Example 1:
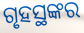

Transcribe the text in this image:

ଗୃହସ୍ଥଙ୍କର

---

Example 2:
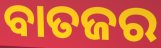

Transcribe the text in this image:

ବାତଜର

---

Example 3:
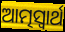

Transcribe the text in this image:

ଆତ୍ମସ୍ଵାର୍ଥ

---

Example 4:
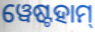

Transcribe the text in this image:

ୱେଷ୍ଟହାମ୍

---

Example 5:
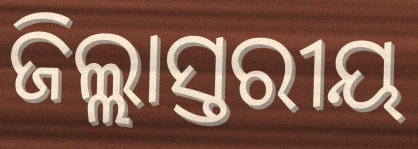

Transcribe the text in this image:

ଜିଲ୍ଲାସ୍ତରୀୟ